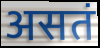
असतं